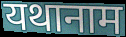
यथानाम